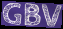
GBV